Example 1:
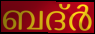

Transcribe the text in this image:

ബദ്ർ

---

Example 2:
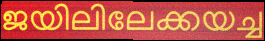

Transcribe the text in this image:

ജയിലിലേക്കയച്ച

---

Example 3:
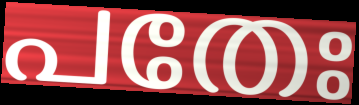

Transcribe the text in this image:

പതേഃ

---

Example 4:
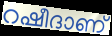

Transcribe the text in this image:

റഷീദാണ്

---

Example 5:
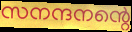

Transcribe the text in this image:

സനന്ദനന്റെ